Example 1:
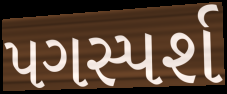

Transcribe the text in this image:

પગસ્પર્શ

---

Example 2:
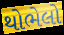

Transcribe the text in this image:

થોભેલો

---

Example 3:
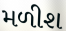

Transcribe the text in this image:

મળીશ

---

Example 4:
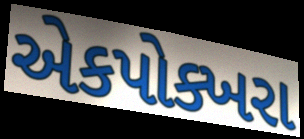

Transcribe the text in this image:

એકપોક્ખરા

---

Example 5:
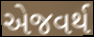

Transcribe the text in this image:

એજવર્થ